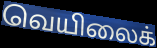
வெயிலைக்